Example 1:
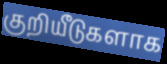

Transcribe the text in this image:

குறியீடுகளாக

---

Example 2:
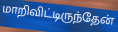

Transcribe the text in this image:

மாறிவிட்டிருந்தேன்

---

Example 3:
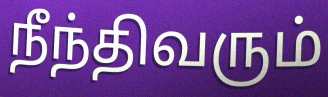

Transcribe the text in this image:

நீந்திவரும்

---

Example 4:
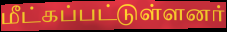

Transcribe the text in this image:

மீட்கப்பட்டுள்ளனர்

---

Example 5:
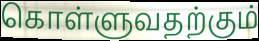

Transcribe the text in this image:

கொள்ளுவதற்கும்